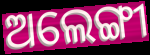
ଅଲେଙ୍ଗୀ